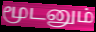
மூடனும்